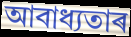
আবাধ্যতাৰ